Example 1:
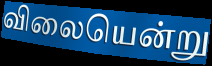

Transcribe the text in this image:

விலையென்று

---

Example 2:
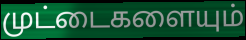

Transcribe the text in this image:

முட்டைகளையும்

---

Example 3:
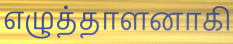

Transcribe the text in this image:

எழுத்தாளனாகி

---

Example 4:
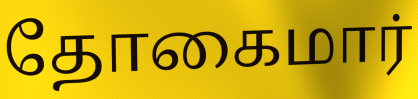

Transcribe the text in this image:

தோகைமார்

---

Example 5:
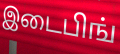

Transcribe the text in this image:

இடைபிங்